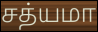
சத்யமா